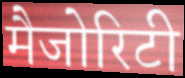
मैजोरिटी